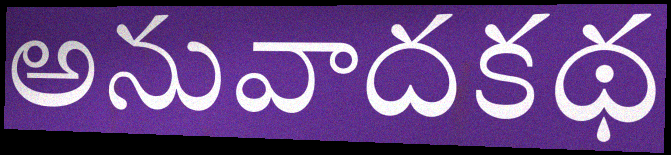
అనువాదకథ